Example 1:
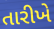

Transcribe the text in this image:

તારીખે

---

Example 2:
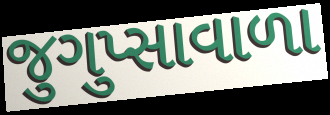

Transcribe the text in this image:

જુગુપ્સાવાળા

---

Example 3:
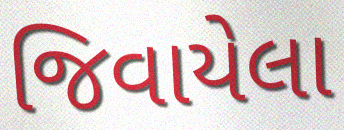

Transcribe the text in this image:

જિવાયેલા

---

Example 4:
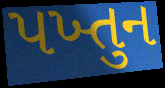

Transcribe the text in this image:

પખ્તુન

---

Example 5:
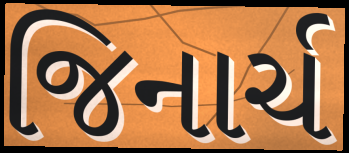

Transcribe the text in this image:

જિનાર્ચ